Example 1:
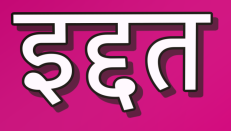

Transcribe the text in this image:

इद्दत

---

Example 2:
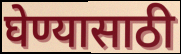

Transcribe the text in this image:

घेण्यासाठी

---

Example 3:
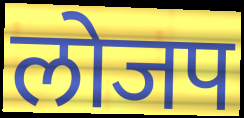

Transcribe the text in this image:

लोजप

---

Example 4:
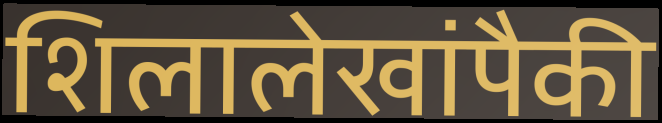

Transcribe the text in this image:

शिलालेखांपैकी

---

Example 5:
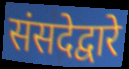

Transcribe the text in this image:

संसदेद्वारे